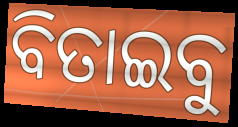
ବିତାଇବୁ